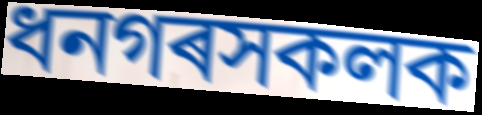
ধনগৰসকলক